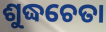
ଶୁଦ୍ଧଚେତା